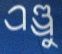
এণ্ড্ৰু